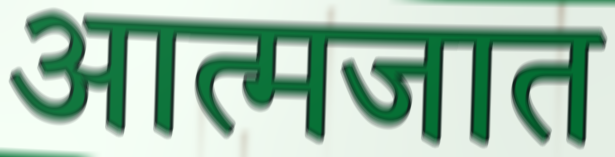
आत्मजात